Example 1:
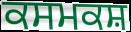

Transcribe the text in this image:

ਕਸਮਕਸ਼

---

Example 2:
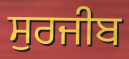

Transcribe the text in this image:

ਸੁਰਜੀਬ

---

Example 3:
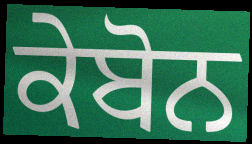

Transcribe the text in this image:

ਕੇਬੋਨ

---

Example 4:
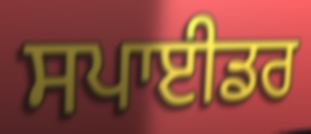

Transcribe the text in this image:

ਸਪਾਈਡਰ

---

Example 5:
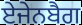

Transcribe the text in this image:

ਏਜੇਨਬੈਗ